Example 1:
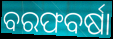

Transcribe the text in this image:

ବରଫବର୍ଷା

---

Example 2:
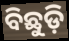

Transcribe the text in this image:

ବିଛୁଡ଼ି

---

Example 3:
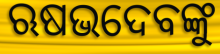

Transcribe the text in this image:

ଋଷଭଦେବଙ୍କୁ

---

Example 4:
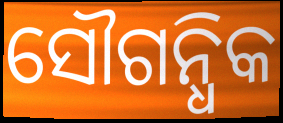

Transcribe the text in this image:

ସୌଗନ୍ଧିକ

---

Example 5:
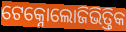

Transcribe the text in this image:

ଟେକ୍ନୋଲୋଜିଭିତ୍ତିକ